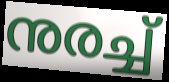
നുരച്ച്